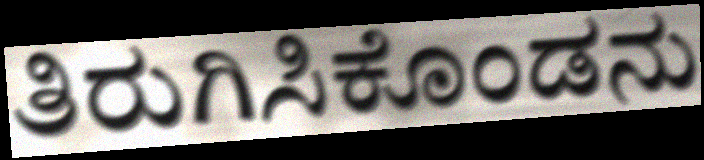
ತಿರುಗಿಸಿಕೊಂಡನು